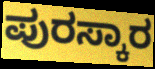
ಪುರಸ್ಕಾರ